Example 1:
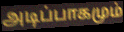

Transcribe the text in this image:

அடிப்பாகமும்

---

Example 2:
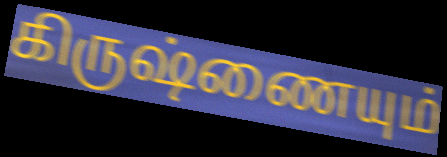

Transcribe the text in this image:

கிருஷ்ணையும்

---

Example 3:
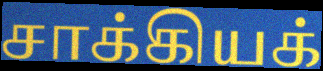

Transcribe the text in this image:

சாக்கியக்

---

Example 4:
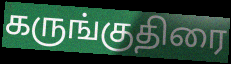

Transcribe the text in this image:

கருங்குதிரை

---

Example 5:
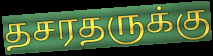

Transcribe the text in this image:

தசரதருக்கு